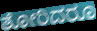
ತೋರಿದರೂ